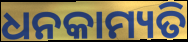
ଧନକାମ୍ୟତି